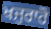
ਖਜੁਰਾਹੋ